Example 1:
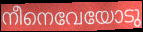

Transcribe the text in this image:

നീനെവേയോടു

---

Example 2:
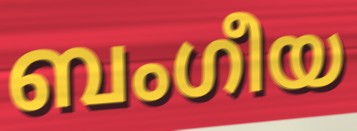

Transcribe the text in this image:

ബംഗീയ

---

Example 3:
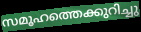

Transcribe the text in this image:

സമൂഹത്തെക്കുറിച്ചു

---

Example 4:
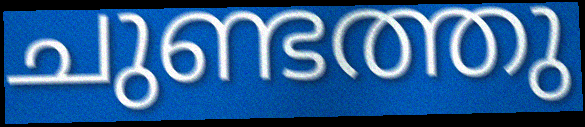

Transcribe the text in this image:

ചുണ്ടത്തു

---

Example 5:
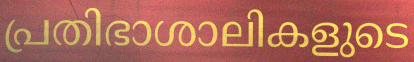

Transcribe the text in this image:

പ്രതിഭാശാലികളുടെ